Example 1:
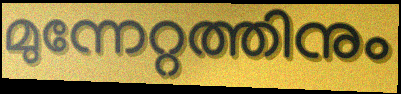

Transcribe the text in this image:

മുന്നേറ്റത്തിനും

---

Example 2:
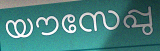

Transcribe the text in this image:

യൗസേപ്പു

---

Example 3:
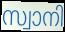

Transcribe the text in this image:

സ്വാനി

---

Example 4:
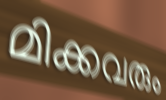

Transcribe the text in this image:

മിക്കവരും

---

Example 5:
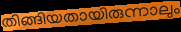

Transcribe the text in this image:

തിങ്ങിയതായിരുന്നാലും